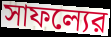
সাফল্যের